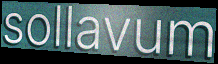
sollavum